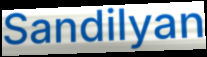
Sandilyan